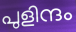
പുളിന്ദം